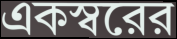
একস্বরের